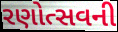
રણોત્સવની